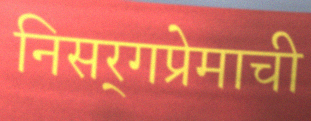
निसर्गप्रेमाची